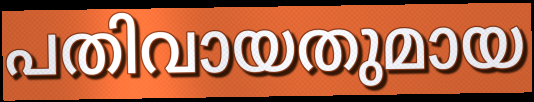
പതിവായതുമായ